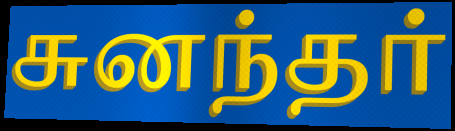
சுனந்தர்